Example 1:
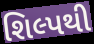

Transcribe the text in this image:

શિલ્પથી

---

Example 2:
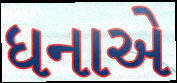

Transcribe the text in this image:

ધનાએ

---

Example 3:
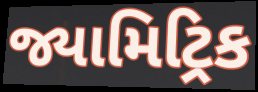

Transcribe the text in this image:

જ્યામિટ્રિક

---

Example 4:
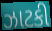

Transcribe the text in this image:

ઝાટકી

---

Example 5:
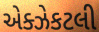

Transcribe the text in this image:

એક્ઝેકટલી